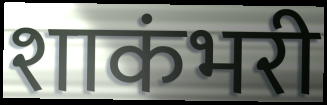
शाकंभरी